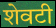
शेवटी